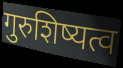
गुरुशिष्यत्व